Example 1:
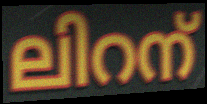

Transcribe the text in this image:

ലിറന്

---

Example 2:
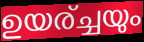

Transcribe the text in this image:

ഉയര്ച്ചയും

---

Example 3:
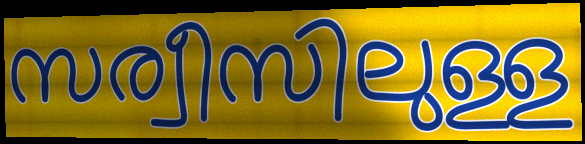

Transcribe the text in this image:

സര്വീസിലുള്ള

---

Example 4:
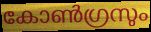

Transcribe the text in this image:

കോൺഗ്രസും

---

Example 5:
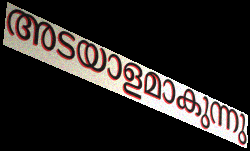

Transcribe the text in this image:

അടയാളമാകുന്നു